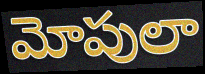
మోపులా